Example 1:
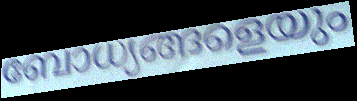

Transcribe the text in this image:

ബോധ്യങ്ങളെയും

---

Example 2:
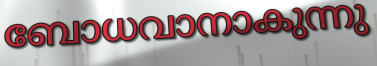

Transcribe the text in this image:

ബോധവാനാകുന്നു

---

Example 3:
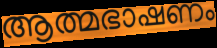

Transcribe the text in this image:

ആത്മഭാഷണം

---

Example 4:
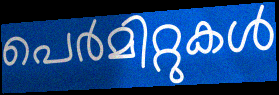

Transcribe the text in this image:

പെർമിറ്റുകൾ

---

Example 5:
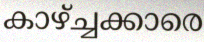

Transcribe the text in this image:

കാഴ്ച്ചക്കാരെ